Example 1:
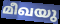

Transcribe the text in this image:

മീഖയു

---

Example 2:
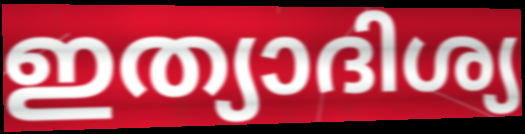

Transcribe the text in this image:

ഇത്യാദിശ്യ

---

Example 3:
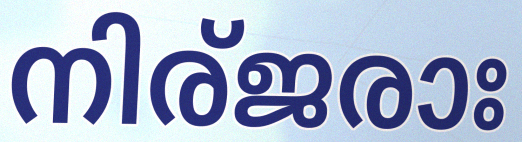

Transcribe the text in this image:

നിര്ജരാഃ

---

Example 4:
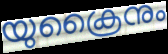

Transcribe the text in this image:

യുക്രൈനും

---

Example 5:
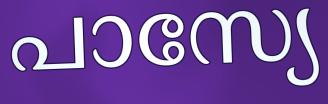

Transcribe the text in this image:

പാസ്യേ